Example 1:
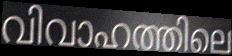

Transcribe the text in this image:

വിവാഹത്തിലെ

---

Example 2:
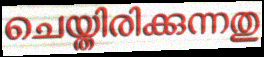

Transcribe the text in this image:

ചെയ്തിരിക്കുന്നതു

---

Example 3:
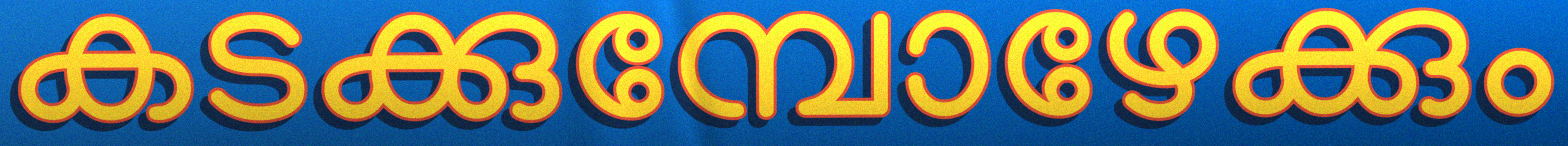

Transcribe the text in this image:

കടക്കുമ്പോഴേക്കും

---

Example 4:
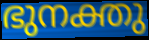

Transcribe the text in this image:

ഭുനക്തു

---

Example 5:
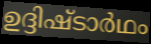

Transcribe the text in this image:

ഉദ്ദിഷ്ടാർഥം